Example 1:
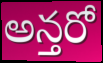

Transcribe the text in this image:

అన్తరో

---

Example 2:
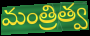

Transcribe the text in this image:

మంత్రిత్వ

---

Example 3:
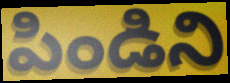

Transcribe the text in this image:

పిండిని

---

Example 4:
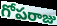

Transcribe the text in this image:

గోపరాజు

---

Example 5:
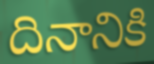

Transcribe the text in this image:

దినానికి